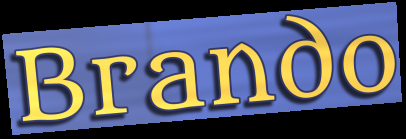
Brando